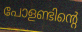
പോളണ്ടിന്റെ